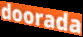
doorada